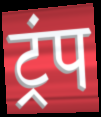
ट्रंप